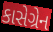
કાસેગ્રેન